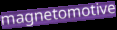
magnetomotive